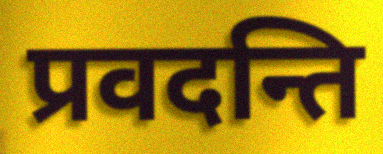
प्रवदन्ति